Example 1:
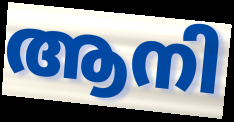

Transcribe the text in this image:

ആനി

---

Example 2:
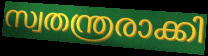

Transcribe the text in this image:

സ്വതന്ത്രരാക്കി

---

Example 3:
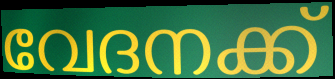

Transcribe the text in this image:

വേദനക്ക്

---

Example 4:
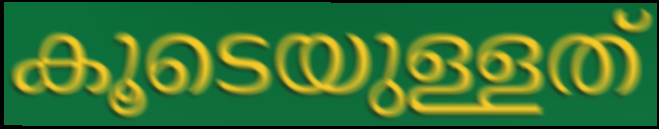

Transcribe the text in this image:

കൂടെയുള്ളത്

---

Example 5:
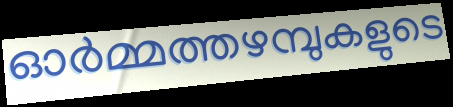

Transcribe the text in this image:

ഓർമ്മത്തഴമ്പുകളുടെ